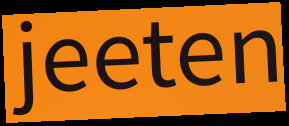
jeeten